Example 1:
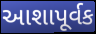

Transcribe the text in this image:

આશાપૂર્વક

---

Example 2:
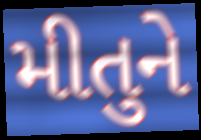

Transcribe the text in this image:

મીતુને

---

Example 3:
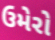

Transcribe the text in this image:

ઉમેરો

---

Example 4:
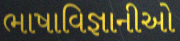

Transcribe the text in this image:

ભાષાવિજ્ઞાનીઓ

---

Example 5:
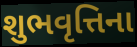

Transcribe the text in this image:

શુભવૃત્તિના